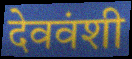
देववंशी